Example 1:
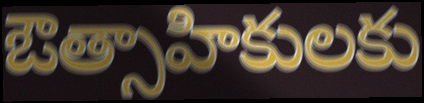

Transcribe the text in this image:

ఔత్సాహికులకు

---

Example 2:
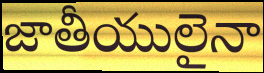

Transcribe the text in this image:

జాతీయులైనా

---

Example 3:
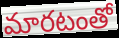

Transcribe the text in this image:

మారటంతో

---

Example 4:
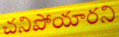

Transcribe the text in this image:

చనిపోయారని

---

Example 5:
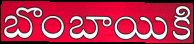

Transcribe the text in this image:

బొంబాయికి